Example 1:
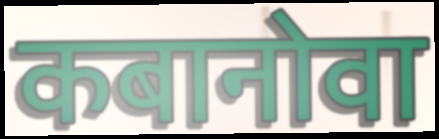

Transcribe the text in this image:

कबानोवा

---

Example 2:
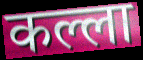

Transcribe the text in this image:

कल्ला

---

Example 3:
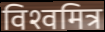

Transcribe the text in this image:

विश्वमित्र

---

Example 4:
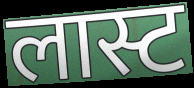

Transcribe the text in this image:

लास्ट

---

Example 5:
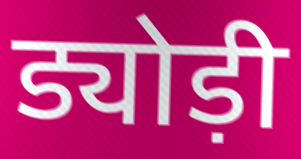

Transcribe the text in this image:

ड्योड़ी